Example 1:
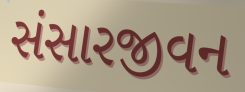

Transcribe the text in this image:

સંસારજીવન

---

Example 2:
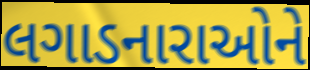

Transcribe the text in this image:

લગાડનારાઓને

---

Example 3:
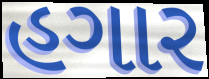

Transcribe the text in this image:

હગાર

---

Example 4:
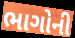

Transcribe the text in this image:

ભાગોની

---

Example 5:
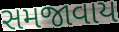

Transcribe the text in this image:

સમજાવાય